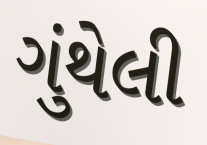
ગુંથેલી